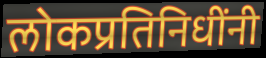
लोकप्रतिनिधींनी